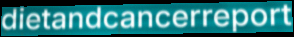
dietandcancerreport